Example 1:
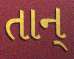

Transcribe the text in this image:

તાન્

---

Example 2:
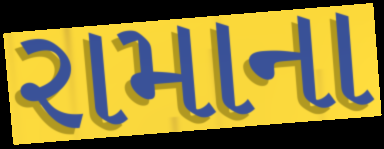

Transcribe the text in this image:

રામાના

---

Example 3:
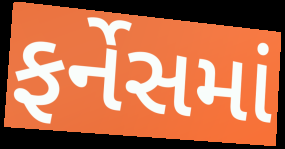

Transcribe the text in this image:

ફર્નેસમાં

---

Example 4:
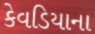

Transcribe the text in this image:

કેવડિયાના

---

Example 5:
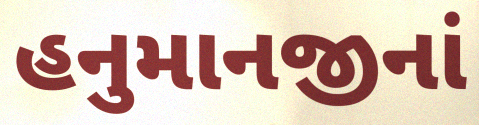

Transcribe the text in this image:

હનુમાનજીનાં